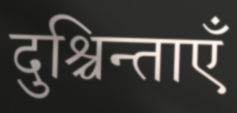
दुश्चिन्ताएँ